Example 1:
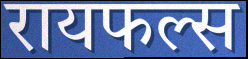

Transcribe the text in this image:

रायफल्स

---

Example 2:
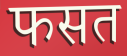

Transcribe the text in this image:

फसत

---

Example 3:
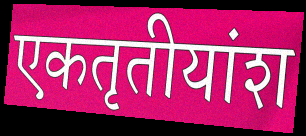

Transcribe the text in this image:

एकतृतीयांश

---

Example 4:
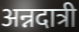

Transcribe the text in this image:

अन्नदात्री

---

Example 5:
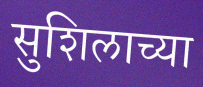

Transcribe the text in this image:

सुशिलाच्या